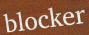
blocker